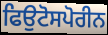
ਫਿਉਟੋਸਪੋਰੀਨ